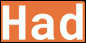
Had